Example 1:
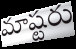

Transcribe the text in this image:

మాష్టరు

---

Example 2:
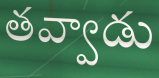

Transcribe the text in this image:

తవ్వాడు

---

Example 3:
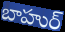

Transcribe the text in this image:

బాహుర్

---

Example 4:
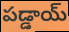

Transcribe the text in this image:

పడ్డాయ్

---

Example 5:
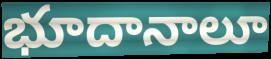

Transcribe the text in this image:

భూదానాలూ